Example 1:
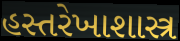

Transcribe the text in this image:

હસ્તરેખાશાસ્ત્ર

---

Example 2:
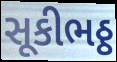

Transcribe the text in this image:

સૂકીભઠ્ઠ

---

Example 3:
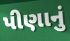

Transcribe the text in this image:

પીણાનું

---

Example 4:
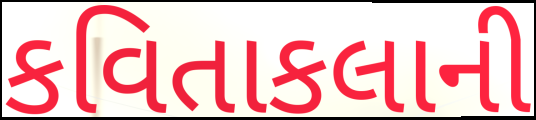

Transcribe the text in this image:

કવિતાકલાની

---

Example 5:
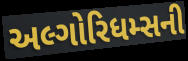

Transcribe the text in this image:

અલ્ગોરિધમ્સની